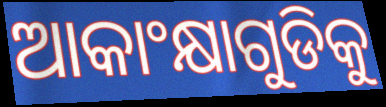
ଆକାଂକ୍ଷାଗୁଡିକୁ